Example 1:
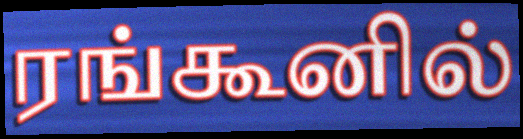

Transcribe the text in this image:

ரங்கூனில்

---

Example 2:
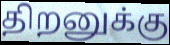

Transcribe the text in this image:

திறனுக்கு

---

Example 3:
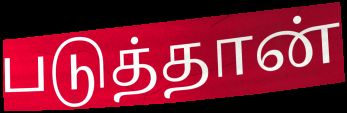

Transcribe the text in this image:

படுத்தான்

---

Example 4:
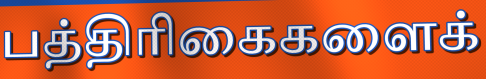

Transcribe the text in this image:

பத்திரிகைகளைக்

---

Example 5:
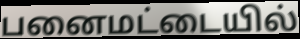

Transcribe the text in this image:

பனைமட்டையில்